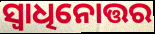
ସ୍ୱାଧିନୋତ୍ତର